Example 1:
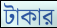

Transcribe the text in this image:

টাকার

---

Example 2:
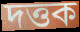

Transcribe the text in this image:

দত্তক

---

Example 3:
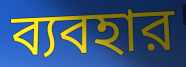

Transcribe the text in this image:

ব্যবহার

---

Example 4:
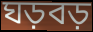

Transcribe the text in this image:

ঘড়বড়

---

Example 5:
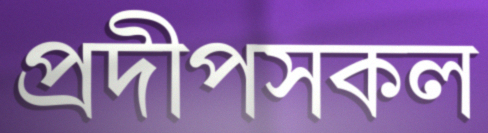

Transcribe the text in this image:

প্রদীপসকল